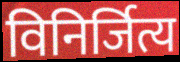
विनिर्जित्य